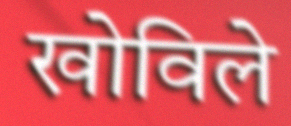
खोविले